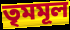
তৃমমূল